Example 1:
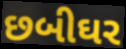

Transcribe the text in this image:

છબીઘર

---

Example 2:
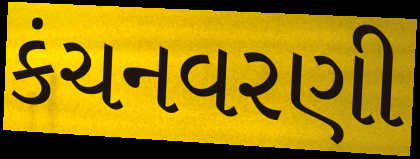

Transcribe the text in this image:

કંચનવરણી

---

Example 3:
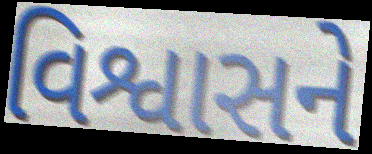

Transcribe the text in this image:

વિશ્વાસને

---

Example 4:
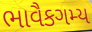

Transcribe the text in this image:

ભાવૈકગમ્ય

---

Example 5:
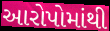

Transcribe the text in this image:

આરોપોમાંથી